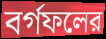
বর্গফলের